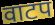
वाटप